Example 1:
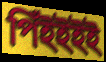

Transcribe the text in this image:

পিঁইইইই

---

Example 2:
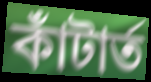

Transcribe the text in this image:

কাঁটার্ত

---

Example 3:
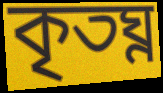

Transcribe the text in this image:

কৃতঘ্ন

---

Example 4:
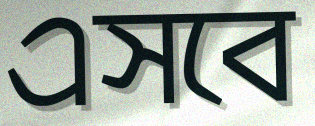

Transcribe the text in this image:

এসবে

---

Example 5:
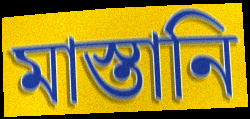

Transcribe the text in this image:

মাস্তানি